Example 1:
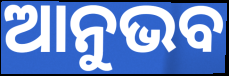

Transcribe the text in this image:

ଆନୁଭବ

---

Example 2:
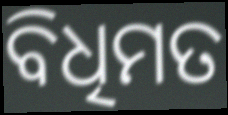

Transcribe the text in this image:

ବିଧିମତ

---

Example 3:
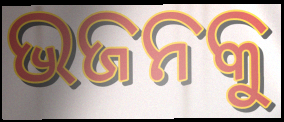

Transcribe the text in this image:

ଭଜନକୁ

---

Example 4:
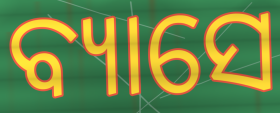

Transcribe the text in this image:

ବ୍ୟାସେ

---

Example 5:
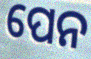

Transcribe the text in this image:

ପେନ